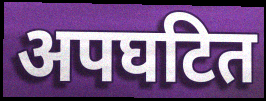
अपघटित